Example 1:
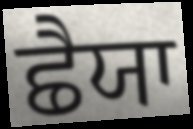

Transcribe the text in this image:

ਛੈਯਾ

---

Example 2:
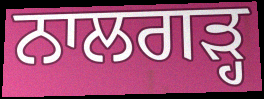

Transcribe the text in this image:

ਨਾਲਗੜ੍ਹ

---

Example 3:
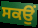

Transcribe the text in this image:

ਸਕਉਂ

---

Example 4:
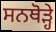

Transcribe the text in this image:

ਸਨਥੋੜ੍ਹੇ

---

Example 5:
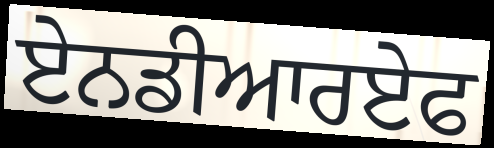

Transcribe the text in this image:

ਏਨਡੀਆਰਏਫ